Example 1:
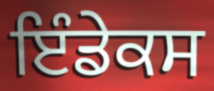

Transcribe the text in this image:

ਇੰਡੇਕਸ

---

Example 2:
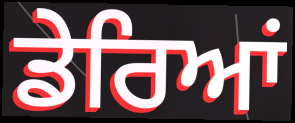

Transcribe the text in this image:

ਡੇਰਿਆਂ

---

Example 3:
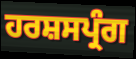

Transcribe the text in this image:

ਹਰਸ਼ਸਪ੍ਰੰਗ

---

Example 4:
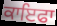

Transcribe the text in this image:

ਕਾਇਫਾ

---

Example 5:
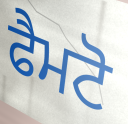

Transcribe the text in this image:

ਫੈਮਟੋ